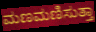
ಮಣಮಣಿಸುತ್ತಾ